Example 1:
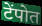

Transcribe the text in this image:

टेंपोत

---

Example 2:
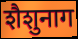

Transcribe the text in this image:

शैशुनाग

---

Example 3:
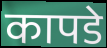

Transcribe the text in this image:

कापडे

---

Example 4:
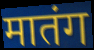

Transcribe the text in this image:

मातंग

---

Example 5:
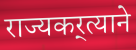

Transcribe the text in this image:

राज्यकर्त्याने